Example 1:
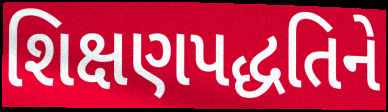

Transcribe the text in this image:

શિક્ષણપદ્ધતિને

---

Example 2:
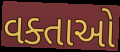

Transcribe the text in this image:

વક્તાઓ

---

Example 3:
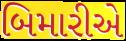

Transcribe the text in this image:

બિમારીએ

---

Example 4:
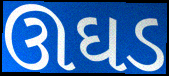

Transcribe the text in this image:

ઊઘડ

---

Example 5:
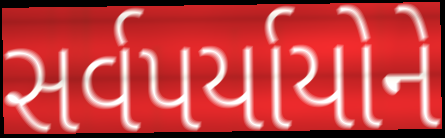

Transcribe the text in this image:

સર્વપર્યાયોને